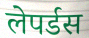
लेपर्डस